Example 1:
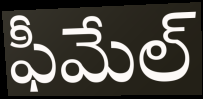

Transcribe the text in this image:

ఫీమేల్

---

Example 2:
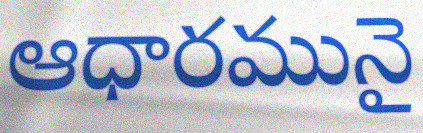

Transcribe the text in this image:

ఆధారమునై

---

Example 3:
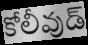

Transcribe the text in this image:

కోలీవుడ్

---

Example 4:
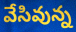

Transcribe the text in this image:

వేసివున్న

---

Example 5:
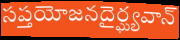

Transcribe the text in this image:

సప్తయోజనదైర్ఘ్యవాన్